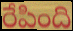
రేపింది